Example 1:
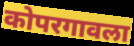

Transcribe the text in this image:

कोपरगावला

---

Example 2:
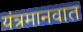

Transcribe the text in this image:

यंत्रमानवात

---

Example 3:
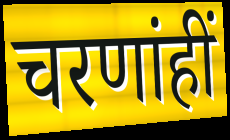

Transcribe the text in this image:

चरणांहीं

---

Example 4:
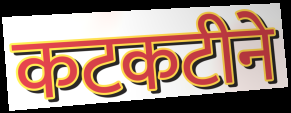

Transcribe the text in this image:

कटकटीने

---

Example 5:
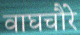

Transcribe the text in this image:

वाघचौरे